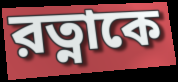
রত্নাকে